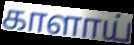
காளாய்